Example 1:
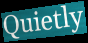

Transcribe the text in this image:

Quietly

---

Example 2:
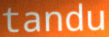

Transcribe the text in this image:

tandu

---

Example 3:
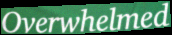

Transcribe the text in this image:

Overwhelmed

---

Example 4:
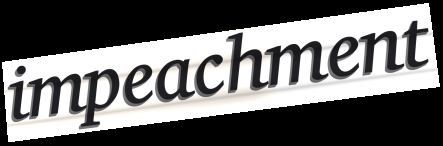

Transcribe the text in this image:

impeachment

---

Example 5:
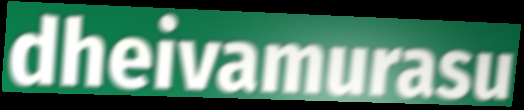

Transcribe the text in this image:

dheivamurasu